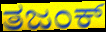
ತಜಂಕ್